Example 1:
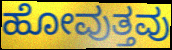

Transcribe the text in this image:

ಹೋವುತ್ತವು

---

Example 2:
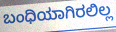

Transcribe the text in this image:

ಬಂಧಿಯಾಗಿರಲಿಲ್ಲ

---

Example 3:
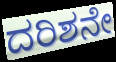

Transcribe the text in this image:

ದರಿಶನೇ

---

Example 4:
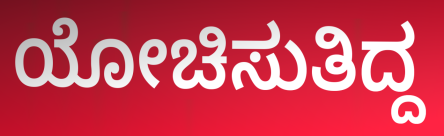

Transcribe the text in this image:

ಯೋಚಿಸುತಿದ್ದ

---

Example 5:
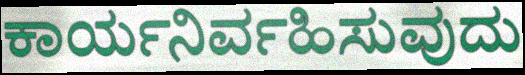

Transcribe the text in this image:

ಕಾರ್ಯನಿರ್ವಹಿಸುವುದು